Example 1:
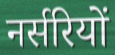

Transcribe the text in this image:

नर्सरियों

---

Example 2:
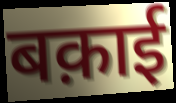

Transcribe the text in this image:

बक़ाई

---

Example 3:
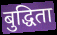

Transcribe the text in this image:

बुद्धिता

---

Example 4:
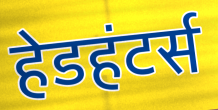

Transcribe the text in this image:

हेडहंटर्स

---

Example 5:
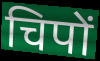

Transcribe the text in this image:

चिपों